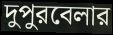
দুপুরবেলার